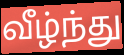
வீழ்ந்து